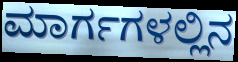
ಮಾರ್ಗಗಳಲ್ಲಿನ